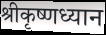
श्रीकृष्णध्यान